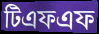
টিএফএফ